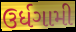
ઉર્ધગામી